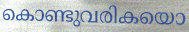
കൊണ്ടുവരികയൊ